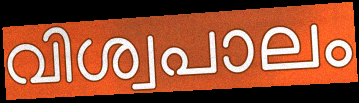
വിശ്വപാലം